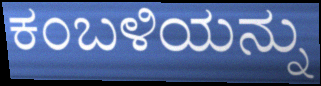
ಕಂಬಳಿಯನ್ನು